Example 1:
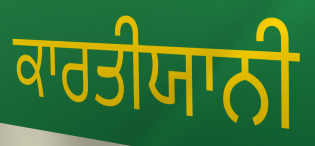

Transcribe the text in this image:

ਕਾਰਤੀਯਾਨੀ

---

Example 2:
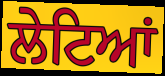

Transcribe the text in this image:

ਲੇਟਿਆਂ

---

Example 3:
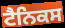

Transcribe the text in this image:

ਟੈਨਿਕਸ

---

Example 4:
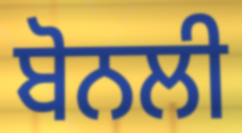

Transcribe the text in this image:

ਬੋਨਲੀ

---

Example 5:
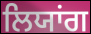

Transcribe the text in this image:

ਲਿਯਾਂਗ